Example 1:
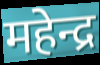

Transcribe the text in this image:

महेन्द्र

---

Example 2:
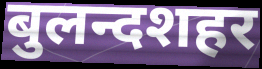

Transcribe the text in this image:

बुलन्दशहर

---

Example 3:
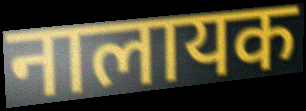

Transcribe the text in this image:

नालायक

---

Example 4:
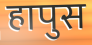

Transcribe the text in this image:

हापुस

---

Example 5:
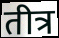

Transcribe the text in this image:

तीत्र